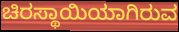
ಚಿರಸ್ಥಾಯಿಯಾಗಿರುವ